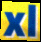
xl